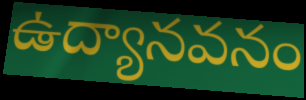
ఉద్యానవనం